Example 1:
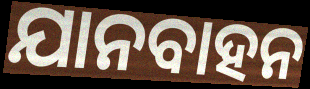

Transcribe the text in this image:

ଯାନବାହନ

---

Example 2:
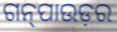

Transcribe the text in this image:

ଗନ୍‍ପାଉଡ଼ର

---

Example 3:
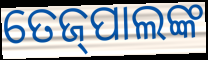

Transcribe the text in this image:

ତେଜ୍‌ପାଲଙ୍କ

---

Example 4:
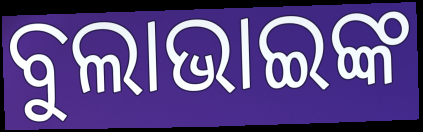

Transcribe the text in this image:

ବୁଲାଭାଇଙ୍କ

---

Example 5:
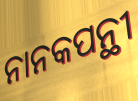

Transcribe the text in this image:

ନାନକପନ୍ଥୀ